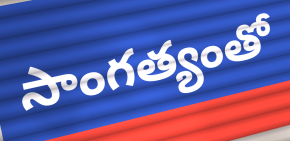
సాంగత్యంతో